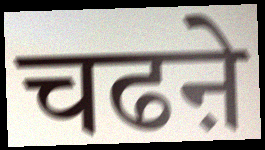
चढऩे